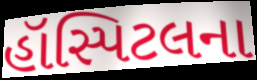
હૉસ્પિટલના